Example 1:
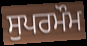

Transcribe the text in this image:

ਸੁਪਰਮੌਮ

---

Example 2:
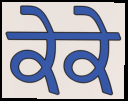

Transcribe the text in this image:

ਕੇਕੇ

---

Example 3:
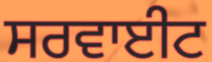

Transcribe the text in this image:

ਸਰਵਾਈਟ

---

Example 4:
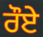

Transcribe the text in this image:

ਰੌਏ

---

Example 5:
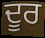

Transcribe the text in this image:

ਦੂਰ